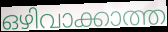
ഒഴിവാക്കാത്ത